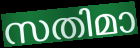
സതിമാ